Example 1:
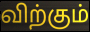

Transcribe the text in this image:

விற்கும்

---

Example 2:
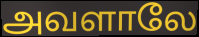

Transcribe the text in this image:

அவளாலே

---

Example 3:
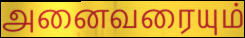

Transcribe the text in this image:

அனைவரையும்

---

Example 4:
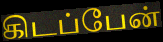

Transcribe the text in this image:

கிடப்பேன்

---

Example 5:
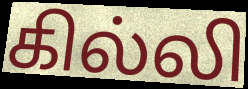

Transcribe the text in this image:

கில்லி